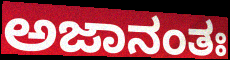
ಅಜಾನಂತಃ